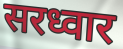
सरध्वार